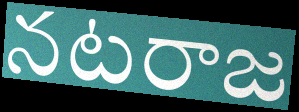
నటరాజ